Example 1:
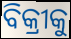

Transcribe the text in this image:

ବିକ୍ରୀକୁ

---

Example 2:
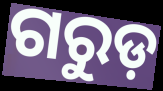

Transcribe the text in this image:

ଗରୁଡ଼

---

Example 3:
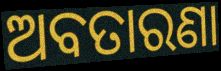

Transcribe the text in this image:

ଅବତାରଣା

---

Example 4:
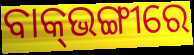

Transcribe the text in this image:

ବାକ୍‍ଭଙ୍ଗୀରେ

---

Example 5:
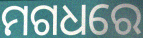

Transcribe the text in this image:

ମଗଧରେ